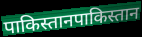
पाकिस्तानपाकिस्तान